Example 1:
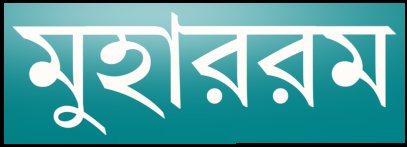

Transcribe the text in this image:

মুহাররম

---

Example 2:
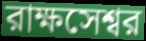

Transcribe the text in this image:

রাক্ষসেশ্বর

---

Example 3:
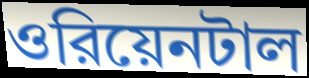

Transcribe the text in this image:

ওরিয়েনটাল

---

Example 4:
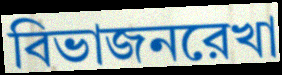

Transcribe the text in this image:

বিভাজনরেখা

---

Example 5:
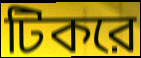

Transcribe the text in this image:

টিকরে